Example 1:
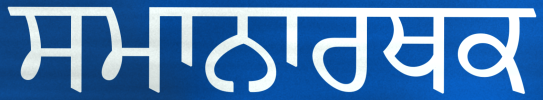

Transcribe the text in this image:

ਸਮਾਨਾਰਥਕ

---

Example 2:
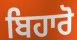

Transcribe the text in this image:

ਬਿਹਾਰੋ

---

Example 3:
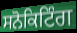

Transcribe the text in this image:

ਸਨੋਕਿਟਿੰਗ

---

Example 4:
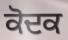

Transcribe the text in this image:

ਕੋਦਕ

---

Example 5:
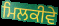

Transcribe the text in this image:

ਮਿਲਕੀਵੇ